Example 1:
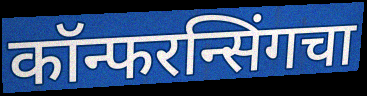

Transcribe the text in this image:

कॉन्फरन्सिंगचा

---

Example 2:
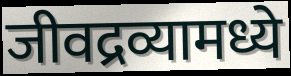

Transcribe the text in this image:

जीवद्रव्यामध्ये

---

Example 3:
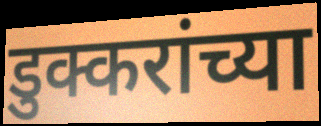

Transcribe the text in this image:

डुक्करांच्या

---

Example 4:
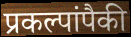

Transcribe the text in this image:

प्रकल्पांपैकी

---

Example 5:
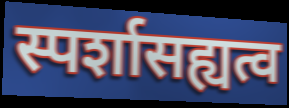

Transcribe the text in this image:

स्पर्शासह्यत्व